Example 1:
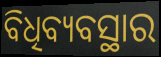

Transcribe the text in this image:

ବିଧିବ୍ୟବସ୍ଥାର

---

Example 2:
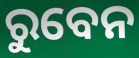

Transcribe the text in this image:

ରୁବେନ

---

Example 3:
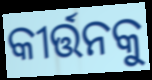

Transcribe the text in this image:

କୀର୍ତ୍ତନକୁ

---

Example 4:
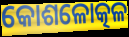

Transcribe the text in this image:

କୋଶଳୋତ୍କଳ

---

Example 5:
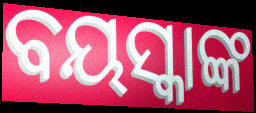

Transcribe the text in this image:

ବୟସ୍କାଙ୍କ